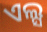
ଏଲ୍ସ